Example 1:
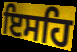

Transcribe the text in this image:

ਇਸਹਿ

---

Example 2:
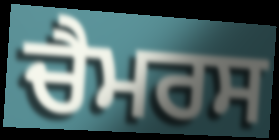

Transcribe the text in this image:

ਚੈਮਰਸ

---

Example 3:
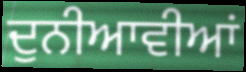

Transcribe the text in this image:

ਦੁਨੀਆਵੀਆਂ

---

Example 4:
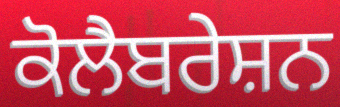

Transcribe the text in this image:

ਕੋਲੈਬਰੇਸ਼ਨ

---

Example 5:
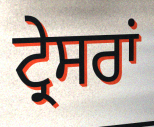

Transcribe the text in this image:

ਟ੍ਰੇਸਰਾਂ